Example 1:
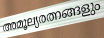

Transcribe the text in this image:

അമൂല്യരത്നങ്ങളും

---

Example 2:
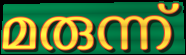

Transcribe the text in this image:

മരുന്ന്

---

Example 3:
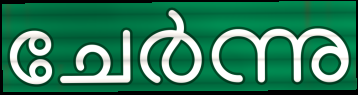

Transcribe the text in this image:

ചേർന്നു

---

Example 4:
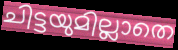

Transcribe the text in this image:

ചിട്ടയുമില്ലാതെ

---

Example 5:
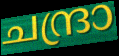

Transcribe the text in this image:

ചന്ദ്രാ